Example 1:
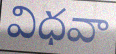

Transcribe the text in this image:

విధవా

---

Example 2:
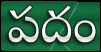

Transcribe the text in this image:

పదం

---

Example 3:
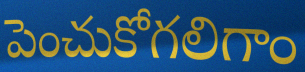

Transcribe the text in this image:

పెంచుకోగలిగాం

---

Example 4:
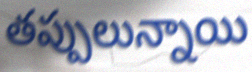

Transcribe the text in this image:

తప్పులున్నాయి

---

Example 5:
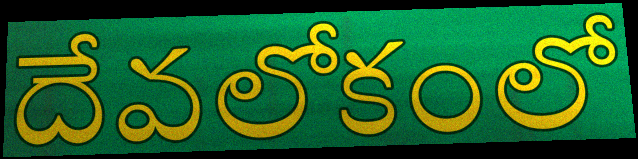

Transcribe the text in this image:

దేవలోకంలో